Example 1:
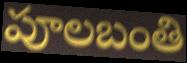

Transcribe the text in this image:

పూలబంతి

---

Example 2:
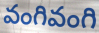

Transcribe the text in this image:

వంగివంగి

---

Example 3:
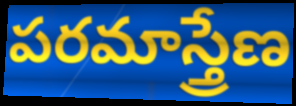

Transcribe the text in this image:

పరమాస్త్రేణ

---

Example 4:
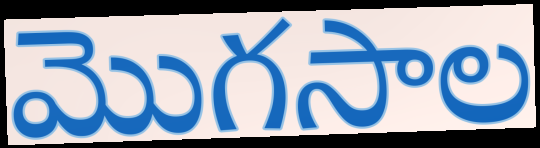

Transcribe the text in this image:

మొగసాల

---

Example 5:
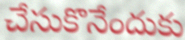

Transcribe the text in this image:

చేసుకొనేందుకు